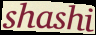
shashi